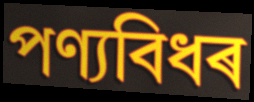
পণ্যবিধৰ